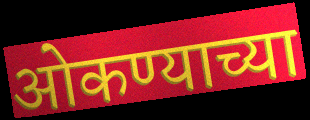
ओकण्याच्या